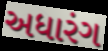
અધારંગ